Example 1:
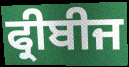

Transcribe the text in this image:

ਫ੍ਰੀਬੀਜ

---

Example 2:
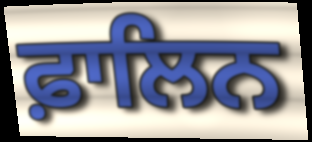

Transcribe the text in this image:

ਫ਼ਾਲਿਨ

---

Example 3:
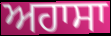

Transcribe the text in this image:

ਅਹਾਸਾ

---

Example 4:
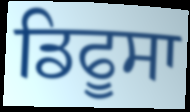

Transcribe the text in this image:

ਡਿਫੂਸਾ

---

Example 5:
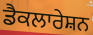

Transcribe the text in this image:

ਡੈਕਲਾਰੇਸ਼ਨ